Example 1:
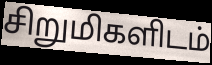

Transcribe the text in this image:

சிறுமிகளிடம்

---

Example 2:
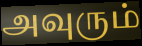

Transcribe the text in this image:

அவுரும்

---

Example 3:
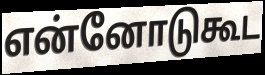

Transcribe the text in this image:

என்னோடுகூட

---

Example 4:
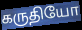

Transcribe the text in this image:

கருதியோ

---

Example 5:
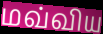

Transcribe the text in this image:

மவ்விய